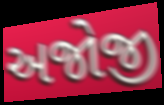
અજોજી